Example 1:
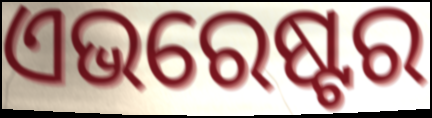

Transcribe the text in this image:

ଏଭରେଷ୍ଟର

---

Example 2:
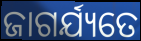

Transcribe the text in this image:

ଜାଗର୍ଯ୍ୟତେ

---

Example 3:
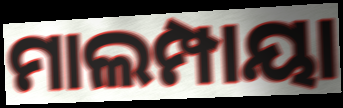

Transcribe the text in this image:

ମାଲମ୍ପାୟା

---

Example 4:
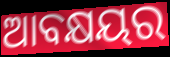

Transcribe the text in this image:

ଆବକ୍ଷୟର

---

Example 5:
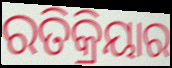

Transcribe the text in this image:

ରତିକ୍ରିୟାର